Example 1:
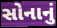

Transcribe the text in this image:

સોનાનું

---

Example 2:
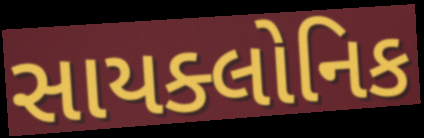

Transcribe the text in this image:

સાયક્લોનિક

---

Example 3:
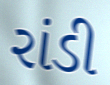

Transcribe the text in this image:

રાંડી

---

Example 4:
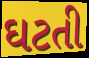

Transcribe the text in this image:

ઘટતી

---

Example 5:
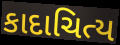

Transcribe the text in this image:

કાદાચિત્ય